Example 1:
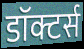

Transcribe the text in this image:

डॉक्टर्स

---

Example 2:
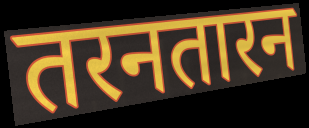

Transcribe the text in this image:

तरनतारन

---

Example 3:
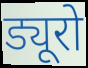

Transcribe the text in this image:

ड्यूरो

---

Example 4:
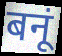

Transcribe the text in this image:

बनूं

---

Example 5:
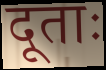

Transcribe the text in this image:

दूताः